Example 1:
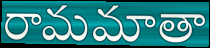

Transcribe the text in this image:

రామమాతా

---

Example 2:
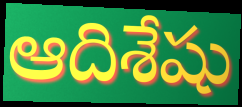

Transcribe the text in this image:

ఆదిశేషు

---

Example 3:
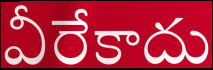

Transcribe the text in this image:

వీరేకాదు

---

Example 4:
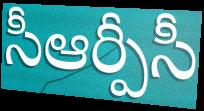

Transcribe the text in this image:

సీఆర్పీసీ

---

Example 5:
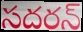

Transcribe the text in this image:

సదరన్